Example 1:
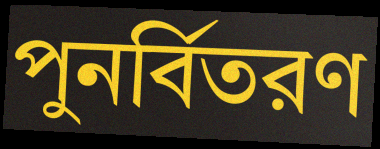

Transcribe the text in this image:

পুনর্বিতরণ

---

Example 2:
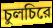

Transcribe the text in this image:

চুলচিরে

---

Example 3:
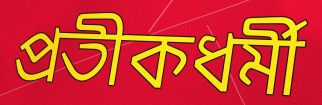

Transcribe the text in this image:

প্রতীকধর্মী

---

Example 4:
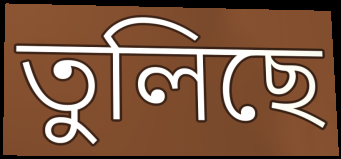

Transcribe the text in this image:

তুলিছে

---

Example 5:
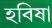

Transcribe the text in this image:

হবিষা